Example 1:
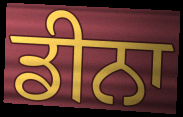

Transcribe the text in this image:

ਡੀਨਾ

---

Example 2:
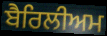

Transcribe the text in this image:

ਬੈਰਿਲੀਅਮ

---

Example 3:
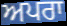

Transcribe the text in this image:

ਅਪਰਾ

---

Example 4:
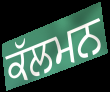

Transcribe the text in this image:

ਕੱਲਮਨ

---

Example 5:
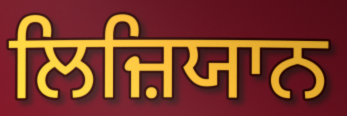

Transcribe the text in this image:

ਲਿਜ਼ਿਯਾਨ